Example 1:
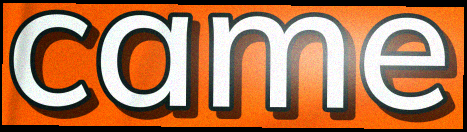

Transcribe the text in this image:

came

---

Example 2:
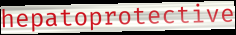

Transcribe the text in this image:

hepatoprotective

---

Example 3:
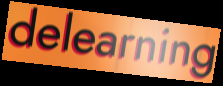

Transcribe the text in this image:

delearning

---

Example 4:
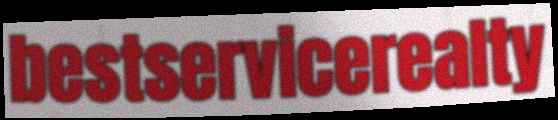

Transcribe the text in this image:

bestservicerealty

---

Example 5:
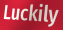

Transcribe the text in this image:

Luckily